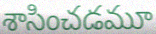
శాసించడమూ